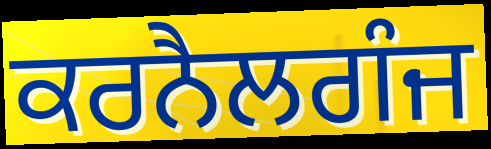
ਕਰਨੈਲਗੰਜ